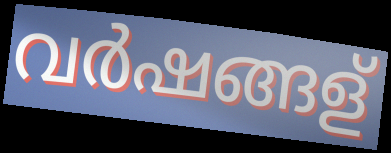
വർഷങ്ങള്